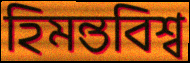
হিমন্তবিশ্ব